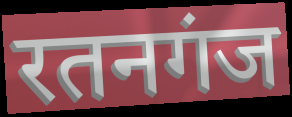
रतनगंज